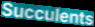
Succulents